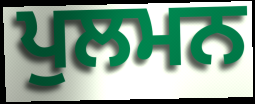
ਪੁਲਮਨ